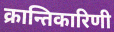
क्रान्तिकारिणी